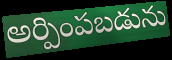
అర్పింపబడును